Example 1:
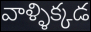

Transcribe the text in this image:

వాళ్ళిక్కడ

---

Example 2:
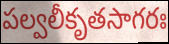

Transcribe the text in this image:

పల్వలీకృతసాగరః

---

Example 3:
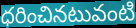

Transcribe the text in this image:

ధరించినటువంటి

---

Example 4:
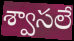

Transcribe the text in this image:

శ్వాసలే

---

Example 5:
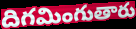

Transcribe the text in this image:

దిగమింగుతారు